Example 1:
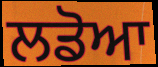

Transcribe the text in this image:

ਲਡੋਆ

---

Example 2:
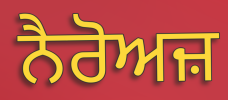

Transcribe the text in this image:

ਨੈਰੋਅਜ਼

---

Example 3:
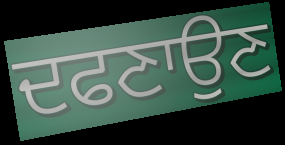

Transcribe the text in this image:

ਦਫਣਾਉਣ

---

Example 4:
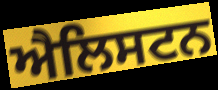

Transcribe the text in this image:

ਐਲਿਸਟਨ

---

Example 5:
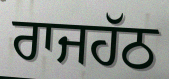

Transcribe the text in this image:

ਰਾਜਹੱਠ